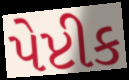
પેપ્ટીક